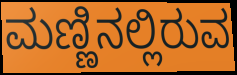
ಮಣ್ಣಿನಲ್ಲಿರುವ